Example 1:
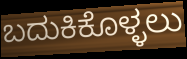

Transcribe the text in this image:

ಬದುಕಿಕೊಳ್ಳಲು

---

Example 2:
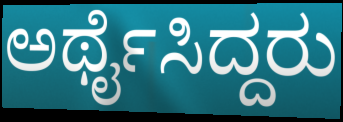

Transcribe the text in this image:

ಅರ್ಥೈಸಿದ್ದರು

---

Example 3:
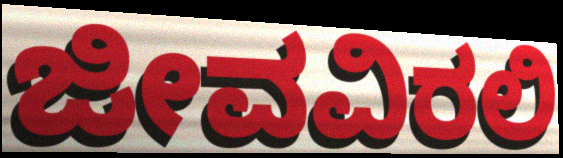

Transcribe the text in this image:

ಜೀವವಿರಲಿ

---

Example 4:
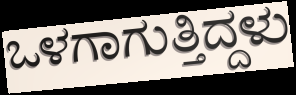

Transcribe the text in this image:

ಒಳಗಾಗುತ್ತಿದ್ದಳು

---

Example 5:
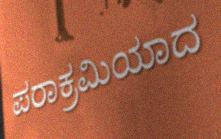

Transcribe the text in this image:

ಪರಾಕ್ರಮಿಯಾದ